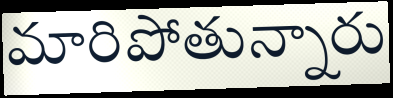
మారిపోతున్నారు